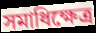
সমাধিক্ষেত্ৰ